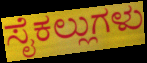
ಸೈಕಲ್ಲುಗಳು